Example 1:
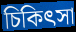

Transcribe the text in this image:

চিকিৎসা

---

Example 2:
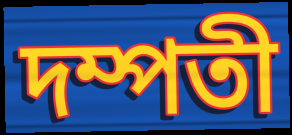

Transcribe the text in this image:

দম্পতী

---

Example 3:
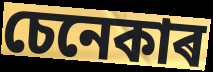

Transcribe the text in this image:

চেনেকাৰ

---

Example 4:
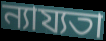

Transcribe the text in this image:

ন্যায্যতা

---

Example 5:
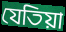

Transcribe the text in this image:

যেতিয়া